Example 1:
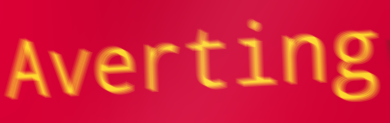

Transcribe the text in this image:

Averting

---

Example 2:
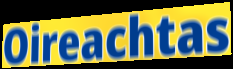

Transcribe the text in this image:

Oireachtas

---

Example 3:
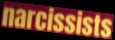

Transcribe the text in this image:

narcissists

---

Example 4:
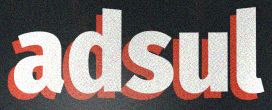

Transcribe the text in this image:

adsul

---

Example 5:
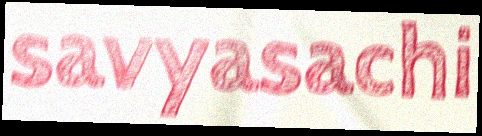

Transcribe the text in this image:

savyasachi